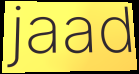
jaad